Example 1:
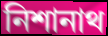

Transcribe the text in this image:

নিশানাথ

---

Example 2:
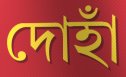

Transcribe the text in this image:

দোহাঁ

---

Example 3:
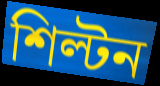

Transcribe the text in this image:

শিল্টন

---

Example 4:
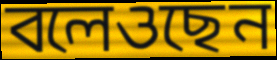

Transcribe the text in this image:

বলেওছেন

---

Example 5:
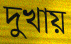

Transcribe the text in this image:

দুখায়